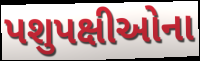
પશુપક્ષીઓના